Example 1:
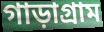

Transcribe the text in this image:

গাড়াগ্রাম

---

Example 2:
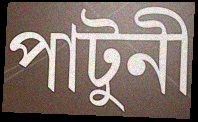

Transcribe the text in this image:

পাটুনী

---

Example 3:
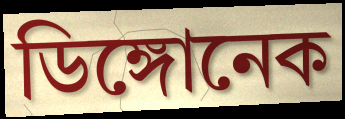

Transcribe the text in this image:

ডিঙ্গোনেক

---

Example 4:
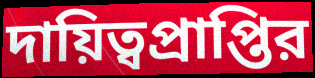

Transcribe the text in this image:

দায়িত্বপ্রাপ্তির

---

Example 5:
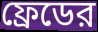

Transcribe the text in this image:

ফ্রেডের